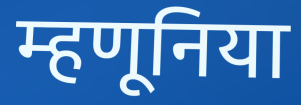
म्हणूनिया